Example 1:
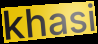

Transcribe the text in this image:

khasi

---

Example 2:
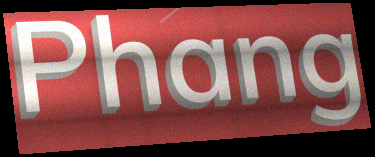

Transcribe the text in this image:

Phang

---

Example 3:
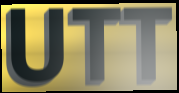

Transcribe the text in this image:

UTT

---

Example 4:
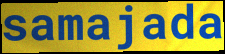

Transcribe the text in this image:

samajada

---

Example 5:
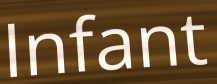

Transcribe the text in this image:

Infant